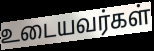
உடையவர்கள்